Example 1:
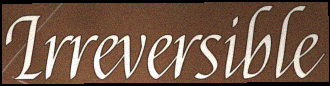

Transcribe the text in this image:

Irreversible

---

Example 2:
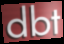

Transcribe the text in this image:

dbt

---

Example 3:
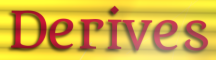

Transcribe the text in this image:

Derives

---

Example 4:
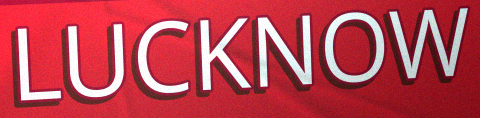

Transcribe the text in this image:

LUCKNOW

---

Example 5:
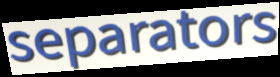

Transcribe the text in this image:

separators